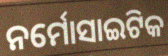
ନର୍ମୋସାଇଟିକ